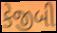
કેજીબી